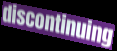
discontinuing